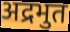
अद्रभुत